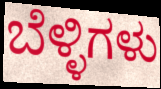
ಬೆಳ್ಳಿಗಳು